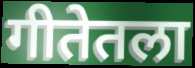
गीतेतला